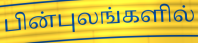
பின்புலங்களில்